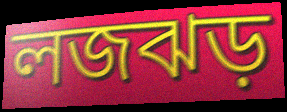
লজঝড়